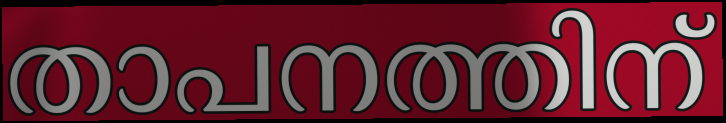
താപനത്തിന്